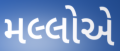
મલ્લોએ